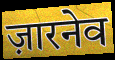
ज़ारनेव